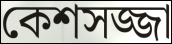
কেশসজ্জা